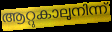
ആറ്റുകാലുനിന്ന്